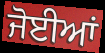
ਜੋਈਆਂ